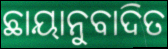
ଛାୟାନୁବାଦିତ